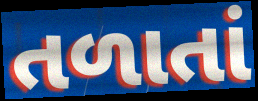
તળાતાં